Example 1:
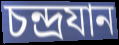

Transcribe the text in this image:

চন্দ্ৰযান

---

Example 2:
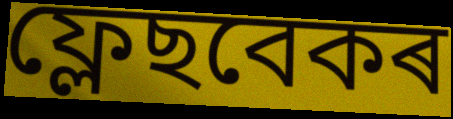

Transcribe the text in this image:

ফ্লেছবেকৰ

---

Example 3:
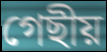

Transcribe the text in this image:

গেছীয়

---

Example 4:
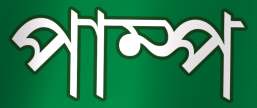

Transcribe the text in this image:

পাম্প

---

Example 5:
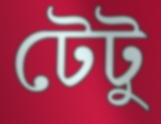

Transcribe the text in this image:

টেটু